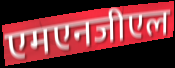
एमएनजीएल